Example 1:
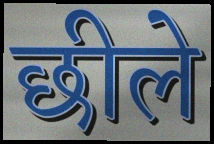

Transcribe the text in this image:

छीले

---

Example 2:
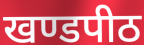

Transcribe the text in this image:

खण्डपीठ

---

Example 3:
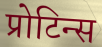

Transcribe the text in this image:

प्रोटिन्स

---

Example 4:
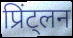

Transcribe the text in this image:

प्रिंट्लन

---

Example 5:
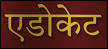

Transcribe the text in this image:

एडोकेट